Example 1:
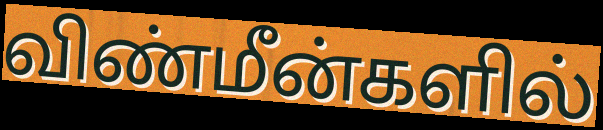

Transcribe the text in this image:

விண்மீன்களில்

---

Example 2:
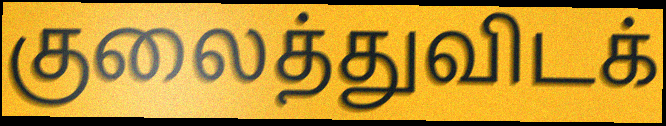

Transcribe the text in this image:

குலைத்துவிடக்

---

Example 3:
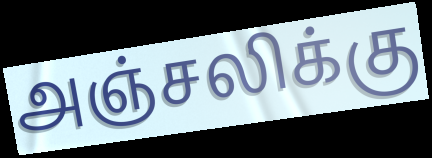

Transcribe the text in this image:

அஞ்சலிக்கு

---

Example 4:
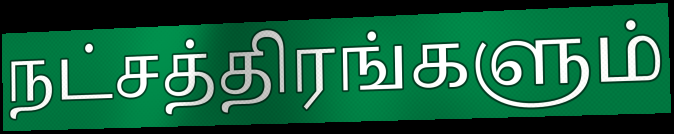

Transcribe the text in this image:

நட்சத்திரங்களும்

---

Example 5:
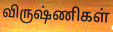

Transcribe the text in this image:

விருஷ்ணிகள்